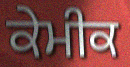
ਕੇਮੀਕ